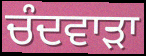
ਚੰਦਵਾੜਾ